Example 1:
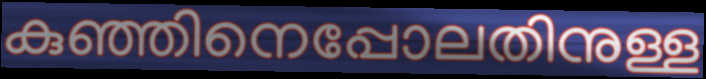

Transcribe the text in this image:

കുഞ്ഞിനെപ്പോലതിനുള്ള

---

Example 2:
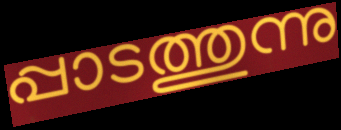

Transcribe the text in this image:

പ്പാടത്തുന്നു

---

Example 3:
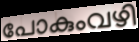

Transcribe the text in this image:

പോകുംവഴി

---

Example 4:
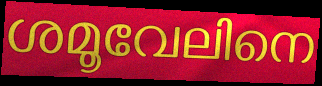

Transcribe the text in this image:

ശമൂവേലിനെ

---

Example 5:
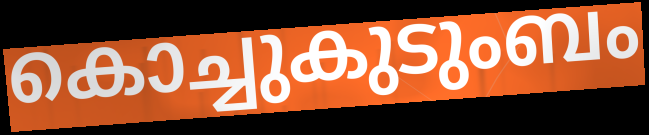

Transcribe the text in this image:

കൊച്ചുകുടുംബം